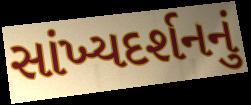
સાંખ્યદર્શનનું